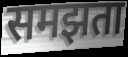
समझता